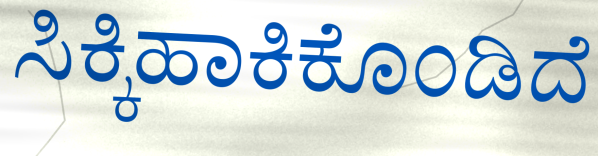
ಸಿಕ್ಕಿಹಾಕಿಕೊಂಡಿದೆ